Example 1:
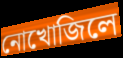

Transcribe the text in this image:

নোখোজিলে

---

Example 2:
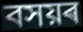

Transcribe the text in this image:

বসয়ৰ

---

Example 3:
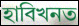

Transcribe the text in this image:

হাবিখনত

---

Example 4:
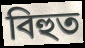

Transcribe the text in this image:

বিহুত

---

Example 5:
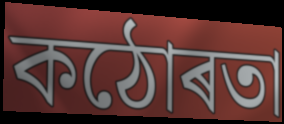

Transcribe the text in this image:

কঠোৰতা